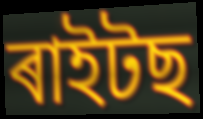
ৰাইটছ